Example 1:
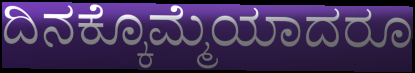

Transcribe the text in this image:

ದಿನಕ್ಕೊಮ್ಮೆಯಾದರೂ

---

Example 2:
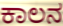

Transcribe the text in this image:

ಕಾಲನ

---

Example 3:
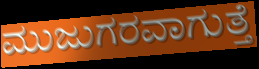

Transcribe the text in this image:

ಮುಜುಗರವಾಗುತ್ತೆ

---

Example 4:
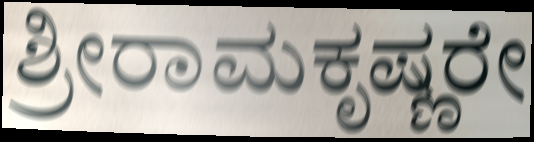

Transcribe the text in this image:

ಶ್ರೀರಾಮಕೃಷ್ಣರೇ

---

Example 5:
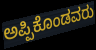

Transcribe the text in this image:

ಅಪ್ಪಿಕೊಂಡವರು